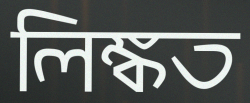
লিঙ্কত